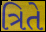
ત્રિતે